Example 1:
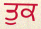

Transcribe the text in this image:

ਤੁਕ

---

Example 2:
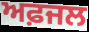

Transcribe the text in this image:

ਅਫ਼ਜਲ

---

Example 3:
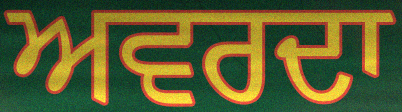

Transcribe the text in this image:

ਅਵਰਦਾ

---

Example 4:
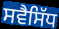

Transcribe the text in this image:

ਸਵੈਸਿੱਧ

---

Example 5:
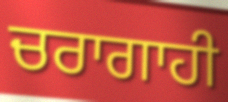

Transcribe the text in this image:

ਚਰਾਗਾਹੀ